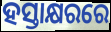
ହସ୍ତାକ୍ଷରରେ